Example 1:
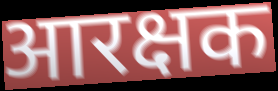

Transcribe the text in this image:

आरक्षक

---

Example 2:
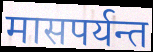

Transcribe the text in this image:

मासपर्यन्त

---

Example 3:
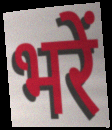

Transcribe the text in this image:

भरें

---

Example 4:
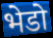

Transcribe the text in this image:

भेडो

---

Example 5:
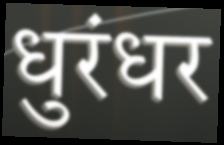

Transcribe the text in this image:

धुरंधर